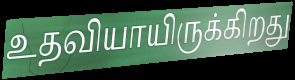
உதவியாயிருக்கிறது